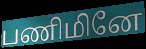
பணிமினே